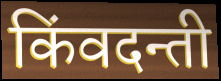
किंवदन्ती